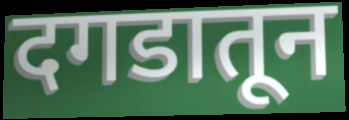
दगडातून